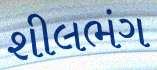
શીલભંગ